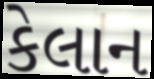
કેલાન